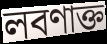
লবণাক্ত